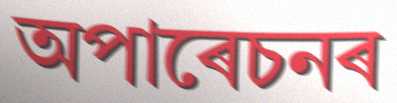
অপাৰেচনৰ